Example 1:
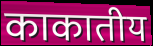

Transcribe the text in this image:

काकातीय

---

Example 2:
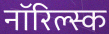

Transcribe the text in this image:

नॉरिल्स्क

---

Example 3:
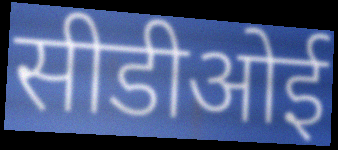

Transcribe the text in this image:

सीडीओई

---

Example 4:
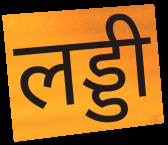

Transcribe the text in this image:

लड्डी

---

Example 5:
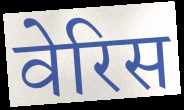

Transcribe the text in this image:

वेरिस